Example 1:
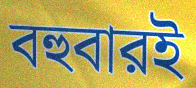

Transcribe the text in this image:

বহুবারই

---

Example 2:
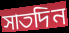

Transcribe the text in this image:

সাতদিন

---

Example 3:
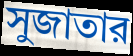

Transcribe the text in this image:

সুজাতার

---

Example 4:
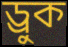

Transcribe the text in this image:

ড্রুক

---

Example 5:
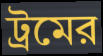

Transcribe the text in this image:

ট্রমের